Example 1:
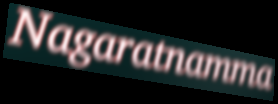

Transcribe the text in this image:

Nagaratnamma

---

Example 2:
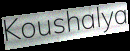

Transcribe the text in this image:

Koushalya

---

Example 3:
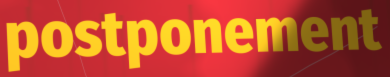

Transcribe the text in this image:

postponement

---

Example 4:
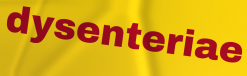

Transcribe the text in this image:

dysenteriae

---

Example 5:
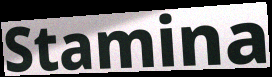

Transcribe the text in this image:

Stamina